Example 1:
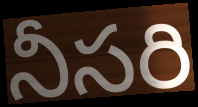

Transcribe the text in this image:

నీసరి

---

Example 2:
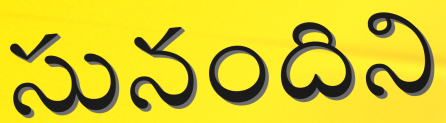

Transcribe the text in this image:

సునందిని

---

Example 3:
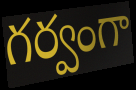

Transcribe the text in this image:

గర్వంగా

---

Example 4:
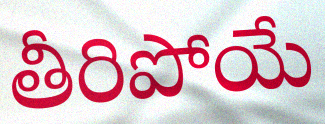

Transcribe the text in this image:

తీరిపోయే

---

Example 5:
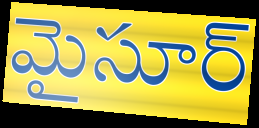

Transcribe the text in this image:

మైసూర్